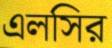
এলসির